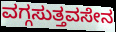
ವಗ್ಗಸುತ್ತವಸೇನ